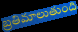
బ్రతిమాలుతుంది